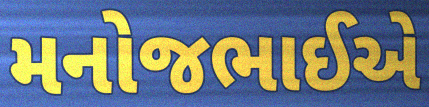
મનોજભાઈએ